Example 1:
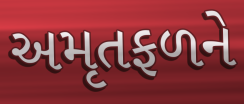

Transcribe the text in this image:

અમૃતફળને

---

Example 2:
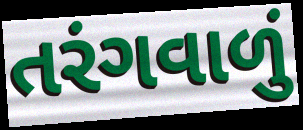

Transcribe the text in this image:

તરંગવાળું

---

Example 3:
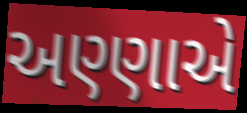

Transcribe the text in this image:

અણ્ણાએ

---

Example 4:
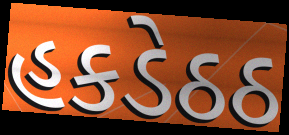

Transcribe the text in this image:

હકડેઠઠ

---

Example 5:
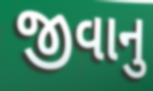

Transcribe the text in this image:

જીવાનુ